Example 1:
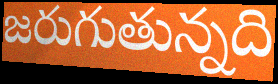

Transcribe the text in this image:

జరుగుతున్నది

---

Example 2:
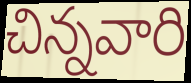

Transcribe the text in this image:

చిన్నవారి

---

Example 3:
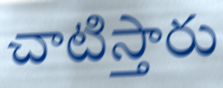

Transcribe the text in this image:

చాటిస్తారు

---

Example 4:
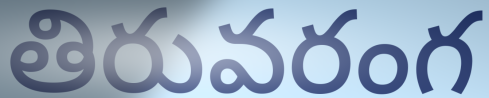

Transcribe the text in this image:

తిరువరంగ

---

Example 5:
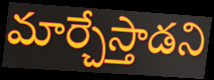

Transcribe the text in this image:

మార్చేస్తాడని